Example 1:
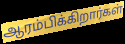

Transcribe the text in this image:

ஆரம்பிக்கிறார்கள்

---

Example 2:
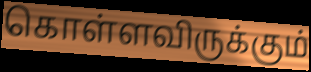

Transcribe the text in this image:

கொள்ளவிருக்கும்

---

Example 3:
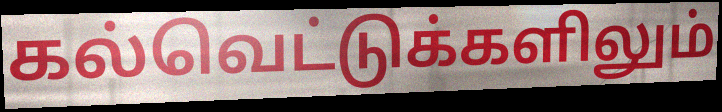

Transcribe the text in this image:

கல்வெட்டுக்களிலும்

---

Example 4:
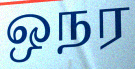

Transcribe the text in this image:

ஒநர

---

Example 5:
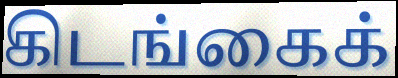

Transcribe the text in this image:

கிடங்கைக்